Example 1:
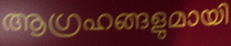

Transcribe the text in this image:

ആഗ്രഹങ്ങളുമായി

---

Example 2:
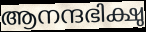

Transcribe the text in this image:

ആനന്ദഭിക്ഷു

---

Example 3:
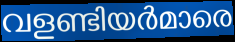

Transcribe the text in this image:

വളണ്ടിയർമാരെ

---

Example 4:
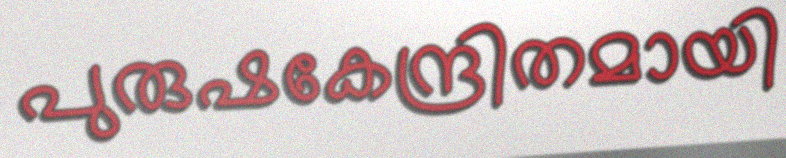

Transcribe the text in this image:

പുരുഷകേന്ദ്രിതമായി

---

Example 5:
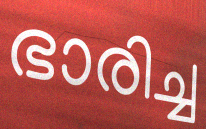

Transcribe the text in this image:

ഭാരിച്ച